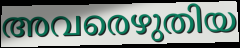
അവരെഴുതിയ